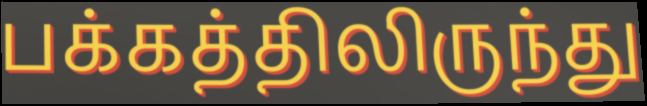
பக்கத்திலிருந்து